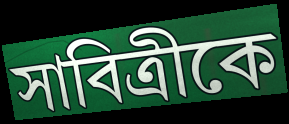
সাবিত্রীকে